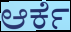
ಆರ್ಕೆ